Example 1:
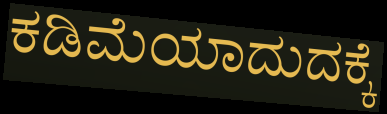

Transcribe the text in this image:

ಕಡಿಮೆಯಾದುದಕ್ಕೆ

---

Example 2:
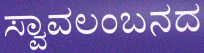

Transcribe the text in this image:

ಸ್ವಾವಲಂಬನದ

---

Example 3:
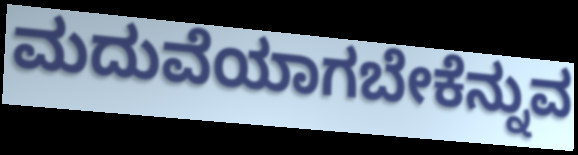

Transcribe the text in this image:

ಮದುವೆಯಾಗಬೇಕೆನ್ನುವ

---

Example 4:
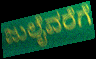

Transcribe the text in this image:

ಜುಲೈವರೆಗೆ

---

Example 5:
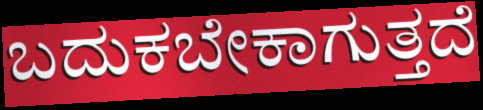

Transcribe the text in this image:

ಬದುಕಬೇಕಾಗುತ್ತದೆ